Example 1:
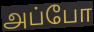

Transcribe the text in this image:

அப்போ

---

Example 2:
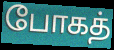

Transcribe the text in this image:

போகத்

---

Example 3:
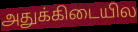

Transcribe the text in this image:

அதுக்கிடையில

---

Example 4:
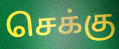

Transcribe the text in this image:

செக்கு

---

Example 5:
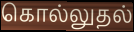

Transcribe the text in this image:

கொல்லுதல்